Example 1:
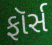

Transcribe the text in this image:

ફૉર્સ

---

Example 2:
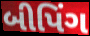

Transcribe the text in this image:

બીપિંગ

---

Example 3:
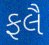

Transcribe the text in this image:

ફલૈ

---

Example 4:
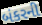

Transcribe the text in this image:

બંકરની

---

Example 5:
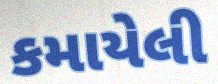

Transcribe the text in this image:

કમાયેલી